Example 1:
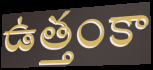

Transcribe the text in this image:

ఉత్తంకా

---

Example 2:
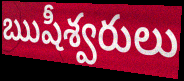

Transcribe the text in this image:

ఋషీశ్వరులు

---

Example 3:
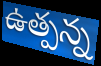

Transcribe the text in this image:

ఉత్పన్న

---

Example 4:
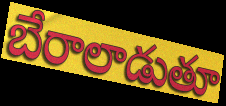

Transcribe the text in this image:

బేరాలాడుతూ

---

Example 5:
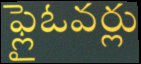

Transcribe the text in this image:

ఫ్లైఓవర్లు